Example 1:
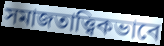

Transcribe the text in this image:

সমাজতাত্ত্বিকভাবে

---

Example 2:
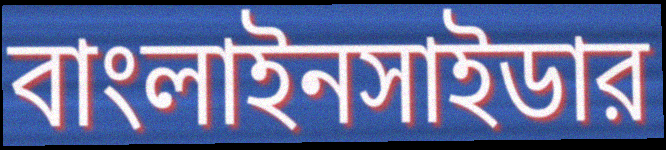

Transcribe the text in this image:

বাংলাইনসাইডার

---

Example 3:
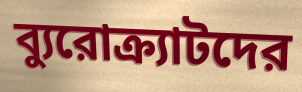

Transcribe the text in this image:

ব্যুরোক্র্যাটদের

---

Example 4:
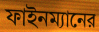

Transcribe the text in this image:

ফাইনম্যানের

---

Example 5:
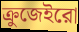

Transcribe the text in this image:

ক্রুজেইরো